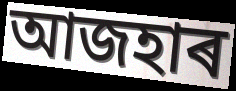
আজহাৰ